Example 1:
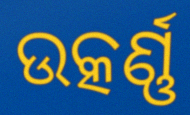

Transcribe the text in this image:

ଉତ୍କର୍ଣ୍ଣ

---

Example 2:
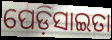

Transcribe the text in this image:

ପେଡ଼ିସାଇତା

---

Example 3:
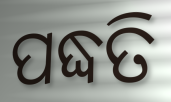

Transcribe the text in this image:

ପଦ୍ଧତି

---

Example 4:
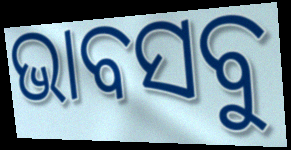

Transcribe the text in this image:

ଭାବସବୁ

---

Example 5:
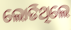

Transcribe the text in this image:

ଲୋଡିଥିଲେ